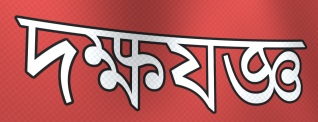
দক্ষযজ্ঞ